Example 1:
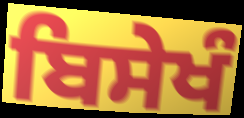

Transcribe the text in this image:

ਬਿਸੇਖੰ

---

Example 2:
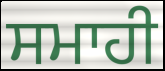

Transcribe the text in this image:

ਸਮਾਹੀ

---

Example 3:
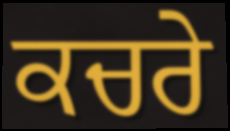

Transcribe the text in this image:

ਕਚਰੇ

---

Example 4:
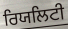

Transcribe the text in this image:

ਰਿਯਲਿਟੀ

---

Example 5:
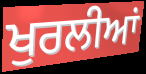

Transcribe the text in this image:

ਖੁਰਲੀਆਂ